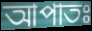
আপাতঃ